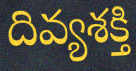
దివ్యశక్తి